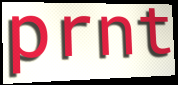
prnt